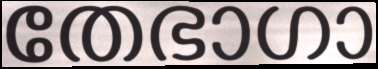
തേഭാഗാ